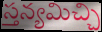
స్తన్యమిచ్చి